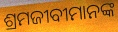
ଶ୍ରମଜୀବୀମାନଙ୍କ